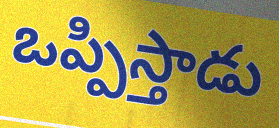
ఒప్పిస్తాడు